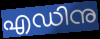
എഡിനു